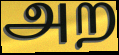
அற